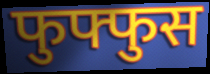
फुफ्फुस